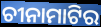
ଚୀନାମାଟିର